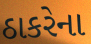
ઠાકરેના